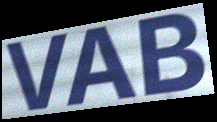
VAB